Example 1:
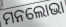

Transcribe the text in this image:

ମନଲୋଭା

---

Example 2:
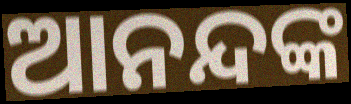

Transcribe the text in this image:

ଆନନ୍ଦଙ୍କ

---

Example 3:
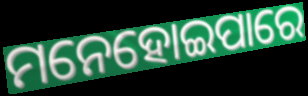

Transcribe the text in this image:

ମନେହୋଇପାରେ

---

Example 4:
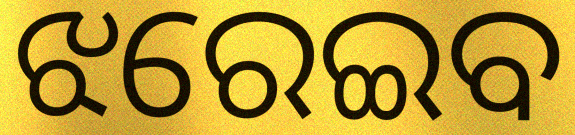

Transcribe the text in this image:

ଝରେଇବ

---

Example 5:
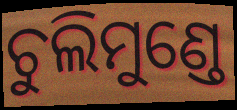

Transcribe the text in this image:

ଚୁଲିମୁଣ୍ଡେ